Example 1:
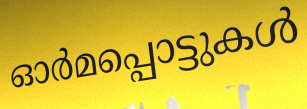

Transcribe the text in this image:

ഓർമപ്പൊട്ടുകൾ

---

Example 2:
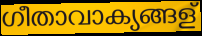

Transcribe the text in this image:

ഗീതാവാക്യങ്ങള്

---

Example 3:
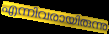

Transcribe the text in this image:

എന്നിവരായിരുന്നു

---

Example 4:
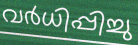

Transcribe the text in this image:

വർധിപ്പിച്ചു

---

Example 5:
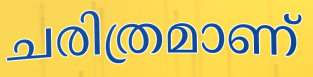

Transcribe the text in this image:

ചരിത്രമാണ്